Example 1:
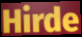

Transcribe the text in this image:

Hirde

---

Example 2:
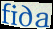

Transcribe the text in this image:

fida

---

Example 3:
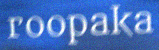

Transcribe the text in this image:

roopaka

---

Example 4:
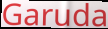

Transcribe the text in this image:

Garuda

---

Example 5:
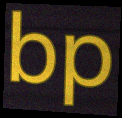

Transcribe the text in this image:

bp